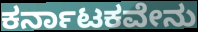
ಕರ್ನಾಟಕವೇನು